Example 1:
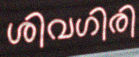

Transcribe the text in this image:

ശിവഗിരി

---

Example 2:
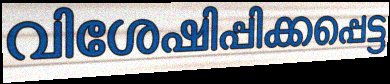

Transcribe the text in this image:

വിശേഷിപ്പിക്കപ്പെട്ട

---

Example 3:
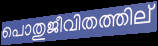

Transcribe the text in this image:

പൊതുജീവിതത്തില്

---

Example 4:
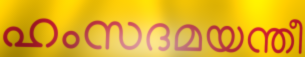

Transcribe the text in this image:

ഹംസദമയന്തീ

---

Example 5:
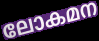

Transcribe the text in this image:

ലോകമന